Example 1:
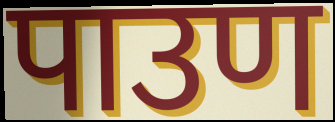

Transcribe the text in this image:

पाउण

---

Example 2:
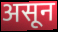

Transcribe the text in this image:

असून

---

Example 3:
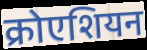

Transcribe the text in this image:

क्रोएशियन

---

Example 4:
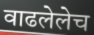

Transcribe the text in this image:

वाढलेलेच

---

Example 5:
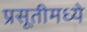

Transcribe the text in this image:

प्रसूतीमध्ये